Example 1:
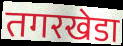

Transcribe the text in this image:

तगरखेडा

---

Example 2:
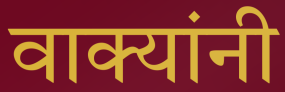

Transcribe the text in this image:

वाक्यांनी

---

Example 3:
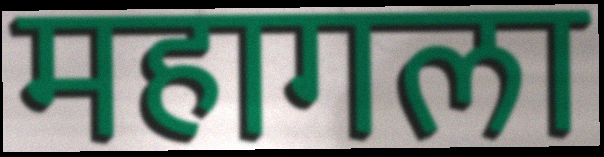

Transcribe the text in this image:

महागला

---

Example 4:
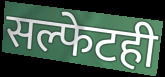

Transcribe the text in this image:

सल्फेटही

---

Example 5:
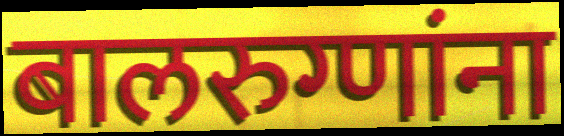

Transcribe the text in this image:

बालरुग्णांना